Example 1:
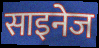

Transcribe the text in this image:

साइनेज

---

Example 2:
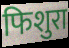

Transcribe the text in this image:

फिशुरा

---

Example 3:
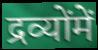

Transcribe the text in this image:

द्रव्योंमें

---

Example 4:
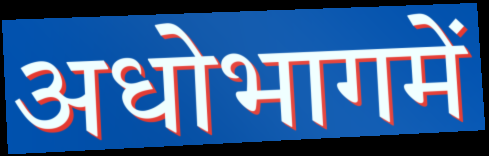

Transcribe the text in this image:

अधोभागमें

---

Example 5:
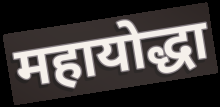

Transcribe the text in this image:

महायोद्धा